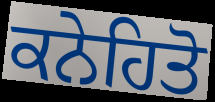
ਕਨੇਹਿਤੋ